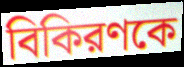
বিকিরণকে